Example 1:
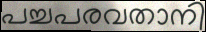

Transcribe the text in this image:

പച്ചപരവതാനി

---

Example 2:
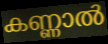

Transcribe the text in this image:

കണ്ണാൽ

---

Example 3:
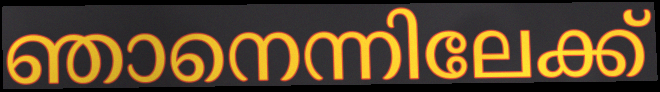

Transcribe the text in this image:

ഞാനെന്നിലേക്ക്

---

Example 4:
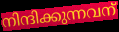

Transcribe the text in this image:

നിന്ദിക്കുന്നവന്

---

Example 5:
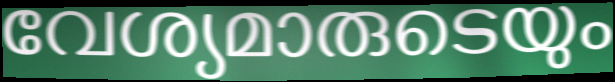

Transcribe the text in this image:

വേശ്യമാരുടെയും